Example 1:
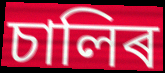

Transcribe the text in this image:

চালিৰ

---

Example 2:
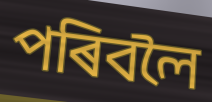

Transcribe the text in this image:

পৰিবলৈ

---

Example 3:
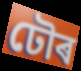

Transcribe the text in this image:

ঢৌৰ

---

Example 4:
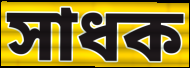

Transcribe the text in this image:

সাধক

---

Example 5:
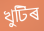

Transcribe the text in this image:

খুটিৰ